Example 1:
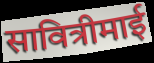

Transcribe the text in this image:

सावित्रीमाई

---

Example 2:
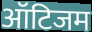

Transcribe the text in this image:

ऑटिजम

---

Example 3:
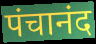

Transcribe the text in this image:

पंचानंद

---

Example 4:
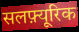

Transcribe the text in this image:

सलफ़्यूरिक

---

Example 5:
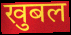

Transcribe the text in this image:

खुबल